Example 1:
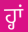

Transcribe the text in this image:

ਹ੍ਹਾਂ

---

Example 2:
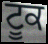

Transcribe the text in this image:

ਟੂਕ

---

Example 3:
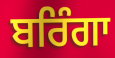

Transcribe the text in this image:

ਬਰਿੰਗਾ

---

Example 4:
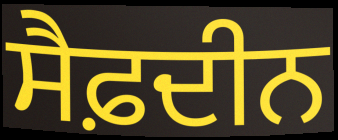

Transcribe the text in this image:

ਸੈਫ਼ਦੀਨ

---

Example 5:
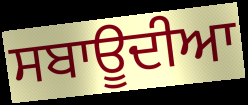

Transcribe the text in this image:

ਸਬਾਊਦੀਆ